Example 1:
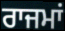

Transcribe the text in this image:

ਰਾਜਮਾਂ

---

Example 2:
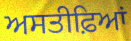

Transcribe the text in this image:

ਅਸਤੀਫ਼ਿਆਂ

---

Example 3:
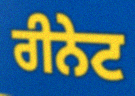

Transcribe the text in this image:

ਰੀਨੇਟ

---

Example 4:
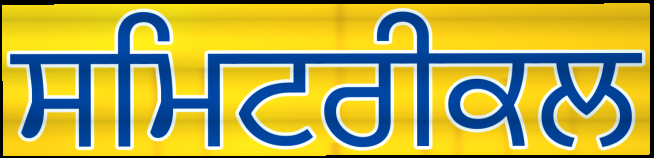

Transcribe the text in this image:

ਸਮਿਟਰੀਕਲ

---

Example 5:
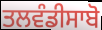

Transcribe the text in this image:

ਤਲਵੰਡੀਸਾਬੋ